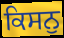
ਕਿਸਨੁ